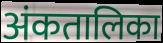
अंकतालिका